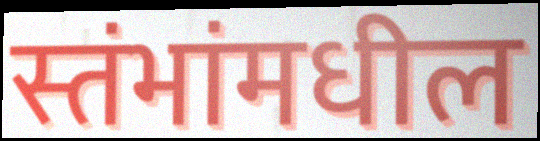
स्तंभांमधील